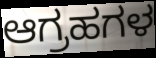
ಆಗ್ರಹಗಳ